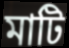
মাটি